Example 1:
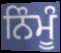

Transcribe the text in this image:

ਨਿੰਮੂੰ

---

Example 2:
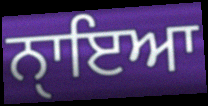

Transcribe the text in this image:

ਨੑਾਇਆ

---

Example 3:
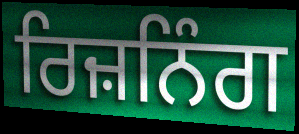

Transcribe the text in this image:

ਰਿਜ਼ਨਿੰਗ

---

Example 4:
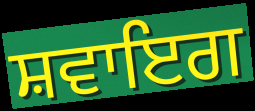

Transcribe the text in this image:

ਸ਼ਵਾਇਗ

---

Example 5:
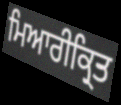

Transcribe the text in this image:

ਮਿਆਰੀਕ੍ਰਿਤ